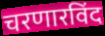
चरणारविंद